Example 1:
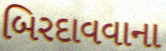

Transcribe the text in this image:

બિરદાવવાના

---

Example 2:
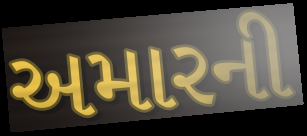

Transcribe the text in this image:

અમારની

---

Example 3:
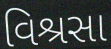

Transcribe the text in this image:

વિશ્રસા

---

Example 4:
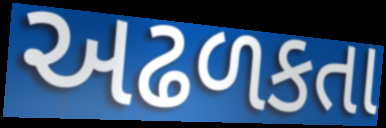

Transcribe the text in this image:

અઢળકતા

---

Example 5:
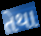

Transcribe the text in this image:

તેથા